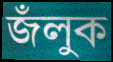
জঁলুক